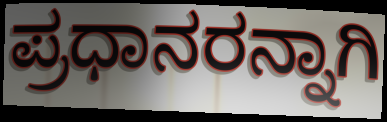
ಪ್ರಧಾನರನ್ನಾಗಿ